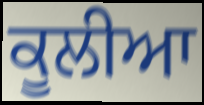
ਕੂਲੀਆ